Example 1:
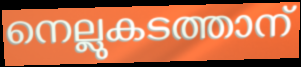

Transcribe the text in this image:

നെല്ലുകടത്താന്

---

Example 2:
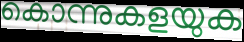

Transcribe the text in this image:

കൊന്നുകളയുക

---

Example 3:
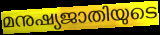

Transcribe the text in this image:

മനുഷ്യജാതിയുടെ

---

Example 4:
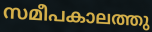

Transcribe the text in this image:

സമീപകാലത്തു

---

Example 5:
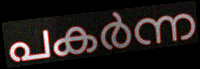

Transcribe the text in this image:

പകർന്ന